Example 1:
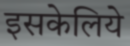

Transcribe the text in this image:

इसकेलिये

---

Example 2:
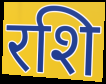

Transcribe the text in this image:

रशि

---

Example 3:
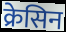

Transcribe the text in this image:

क्रेसिन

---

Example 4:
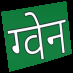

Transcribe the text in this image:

ग्वेन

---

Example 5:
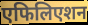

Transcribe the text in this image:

एफिलिएशन